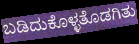
ಬಡಿದುಕೊಳ್ಳತೊಡಗಿತು